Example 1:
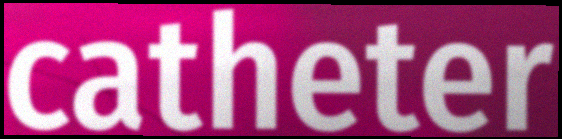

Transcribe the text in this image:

catheter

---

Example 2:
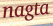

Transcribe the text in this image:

nagta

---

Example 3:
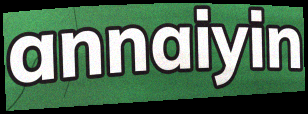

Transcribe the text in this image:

annaiyin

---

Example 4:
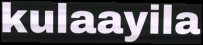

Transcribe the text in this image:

kulaayila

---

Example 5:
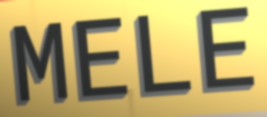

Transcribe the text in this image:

MELE